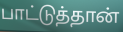
பாட்டுத்தான்